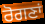
ਰੋਗਣਾਂ